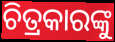
ଚିତ୍ରକାରଙ୍କୁ